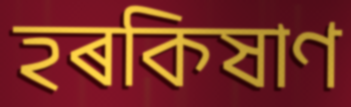
হৰকিষাণ